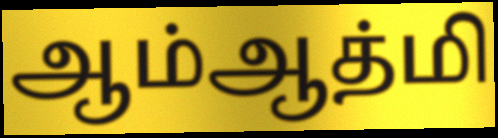
ஆம்ஆத்மி